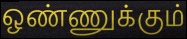
ஒண்ணுக்கும்